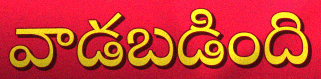
వాడబడింది